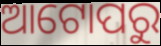
ଆଟୋପରୁ